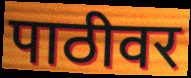
पाठीवर